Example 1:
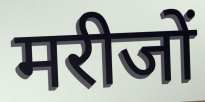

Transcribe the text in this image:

मरीजों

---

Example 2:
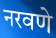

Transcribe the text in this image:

नरवणे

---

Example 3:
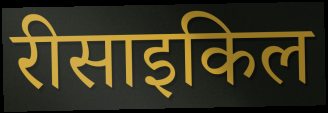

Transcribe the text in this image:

रीसाइकिल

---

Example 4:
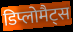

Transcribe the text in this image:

डिप्लोमैट्स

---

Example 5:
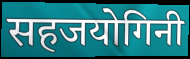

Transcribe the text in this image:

सहजयोगिनी